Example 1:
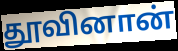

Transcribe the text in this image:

தூவினான்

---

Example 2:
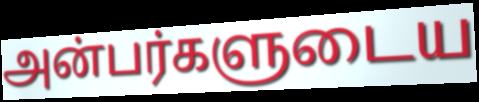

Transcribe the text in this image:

அன்பர்களுடைய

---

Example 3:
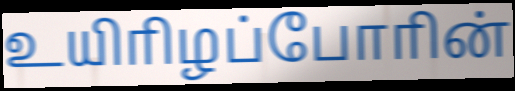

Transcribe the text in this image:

உயிரிழப்போரின்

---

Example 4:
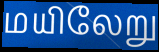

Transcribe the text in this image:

மயிலேறு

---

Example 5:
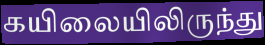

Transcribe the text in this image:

கயிலையிலிருந்து